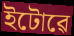
ইটোৱে